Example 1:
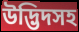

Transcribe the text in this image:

উদ্ভিদসহ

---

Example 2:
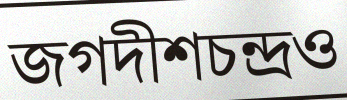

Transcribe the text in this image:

জগদীশচন্দ্রও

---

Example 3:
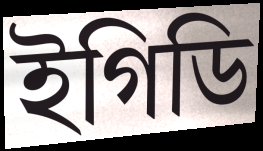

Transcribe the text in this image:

ইগিডি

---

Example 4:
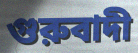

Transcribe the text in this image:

গুরুবাদী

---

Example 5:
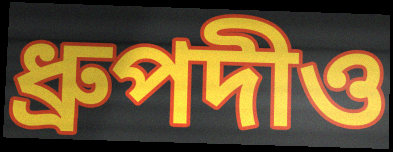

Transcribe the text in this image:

ধ্রুপদীও